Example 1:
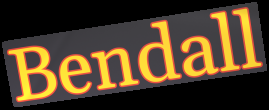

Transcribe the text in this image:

Bendall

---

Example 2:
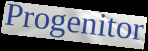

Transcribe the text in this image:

Progenitor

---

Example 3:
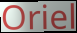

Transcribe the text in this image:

Oriel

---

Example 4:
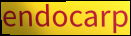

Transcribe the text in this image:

endocarp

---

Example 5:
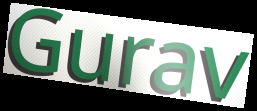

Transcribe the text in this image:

Gurav